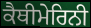
ਕੈਥੀਮੇਰਿਨੀ